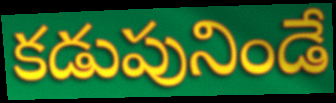
కడుపునిండే